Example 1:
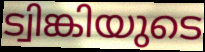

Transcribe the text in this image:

ട്വിങ്കിയുടെ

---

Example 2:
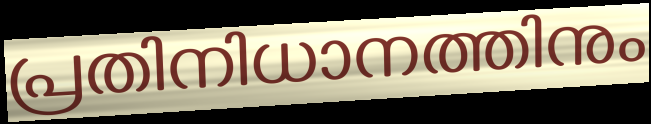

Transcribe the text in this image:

പ്രതിനിധാനത്തിനും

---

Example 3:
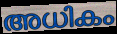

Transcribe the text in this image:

അധികം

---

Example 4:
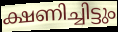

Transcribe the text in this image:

ക്ഷണിച്ചിട്ടും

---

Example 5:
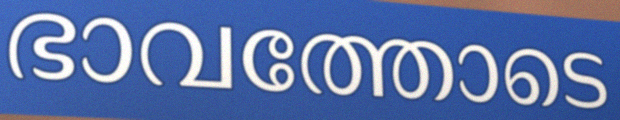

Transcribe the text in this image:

ഭാവത്തോടെ